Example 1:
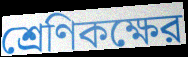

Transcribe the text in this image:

শ্রেণিকক্ষের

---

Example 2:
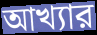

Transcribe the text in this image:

আখ্যার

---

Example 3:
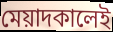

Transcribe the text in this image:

মেয়াদকালেই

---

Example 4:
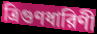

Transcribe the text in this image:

ত্রিগুণধারিণী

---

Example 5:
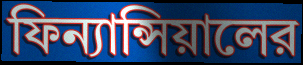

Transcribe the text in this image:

ফিন্যান্সিয়ালের